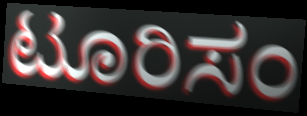
ಟೂರಿಸಂ